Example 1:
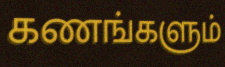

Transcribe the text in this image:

கணங்களும்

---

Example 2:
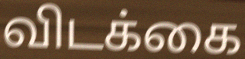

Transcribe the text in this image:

விடக்கை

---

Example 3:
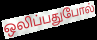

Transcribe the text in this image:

ஒலிப்பதுபோல்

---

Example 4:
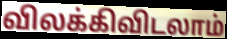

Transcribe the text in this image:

விலக்கிவிடலாம்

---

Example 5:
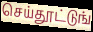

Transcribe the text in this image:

செய்தூட்டுங்